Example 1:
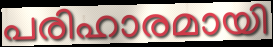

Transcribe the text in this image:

പരിഹാരമായി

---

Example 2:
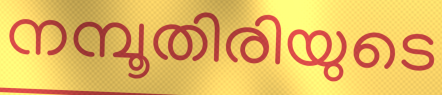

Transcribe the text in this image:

നമ്പൂതിരിയുടെ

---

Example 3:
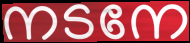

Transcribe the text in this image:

നടനേ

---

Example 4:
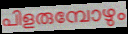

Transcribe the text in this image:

പിളരുമ്പോഴും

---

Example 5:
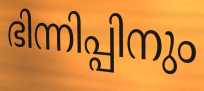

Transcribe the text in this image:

ഭിന്നിപ്പിനും